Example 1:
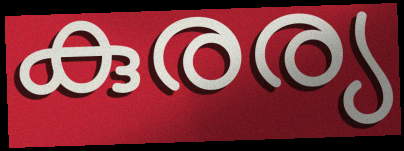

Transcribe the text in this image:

കുരര്യ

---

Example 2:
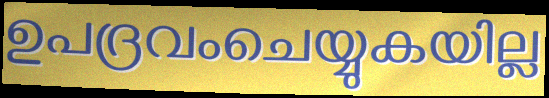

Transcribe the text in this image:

ഉപദ്രവംചെയ്യുകയില്ല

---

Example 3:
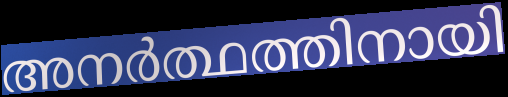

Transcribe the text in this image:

അനർത്ഥത്തിനായി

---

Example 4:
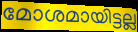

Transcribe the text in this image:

മോശമായിട്ടല്ല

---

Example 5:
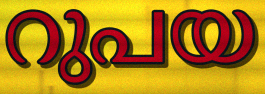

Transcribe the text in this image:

റുപയ